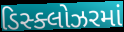
ડિસ્ક્લોઝરમાં